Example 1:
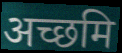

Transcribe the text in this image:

अच्छमि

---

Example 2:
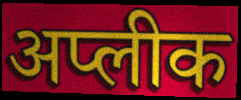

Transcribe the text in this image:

अप्लीक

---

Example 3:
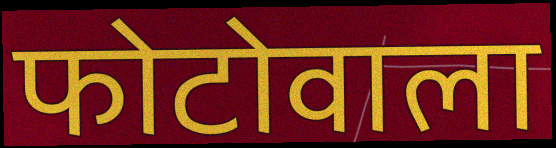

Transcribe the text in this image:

फोटोवाला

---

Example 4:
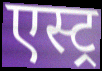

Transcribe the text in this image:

एस्ट्र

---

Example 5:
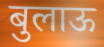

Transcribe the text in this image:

बुलाऊ